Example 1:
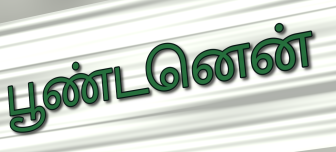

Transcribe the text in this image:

பூண்டனென்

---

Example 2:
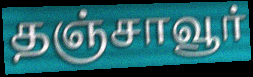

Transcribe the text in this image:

தஞ்சாவூர்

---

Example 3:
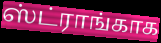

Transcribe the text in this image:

ஸ்ட்ராங்காக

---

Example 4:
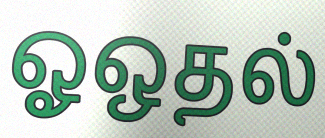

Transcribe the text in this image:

ஓஒதல்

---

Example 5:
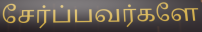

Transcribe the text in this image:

சேர்ப்பவர்களே